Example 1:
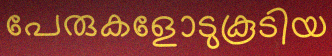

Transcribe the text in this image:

പേരുകളോടുകൂടിയ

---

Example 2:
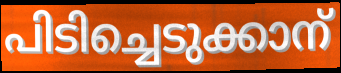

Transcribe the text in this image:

പിടിച്ചെടുക്കാന്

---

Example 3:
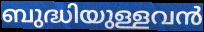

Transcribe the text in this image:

ബുദ്ധിയുള്ളവൻ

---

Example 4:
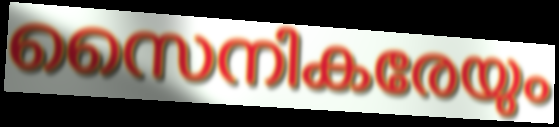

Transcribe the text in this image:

സൈനികരേയും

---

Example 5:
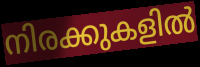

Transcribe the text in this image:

നിരക്കുകളിൽ